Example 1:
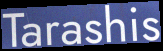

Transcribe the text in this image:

Tarashis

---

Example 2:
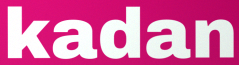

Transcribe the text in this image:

kadan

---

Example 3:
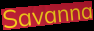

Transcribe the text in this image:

Savanna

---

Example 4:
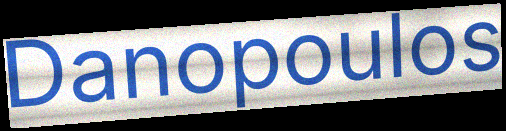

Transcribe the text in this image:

Danopoulos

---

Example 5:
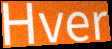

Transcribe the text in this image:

Hver